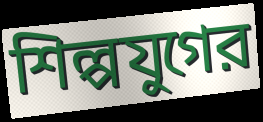
শিল্পযুগের